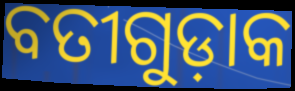
ବତୀଗୁଡ଼ାକ